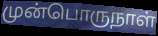
முன்பொருநாள்